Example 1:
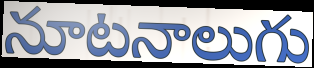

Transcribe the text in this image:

నూటనాలుగు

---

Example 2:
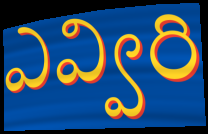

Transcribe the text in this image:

ఎవ్విరి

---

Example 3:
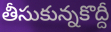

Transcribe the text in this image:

తీసుకున్నకొద్దీ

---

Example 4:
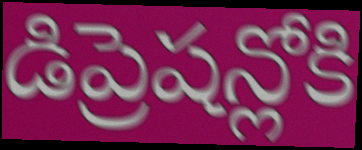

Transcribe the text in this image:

డిప్రెషన్లోకి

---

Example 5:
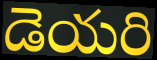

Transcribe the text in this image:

డెయరి